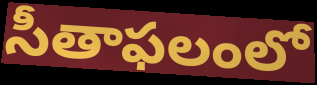
సీతాఫలంలో